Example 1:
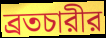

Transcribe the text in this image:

ব্রতচারীর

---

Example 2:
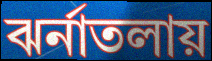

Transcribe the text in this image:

ঝর্নাতলায়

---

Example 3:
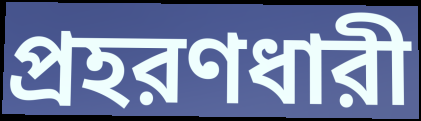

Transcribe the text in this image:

প্রহরণধারী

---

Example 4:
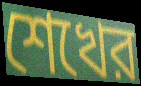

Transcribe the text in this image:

শেখের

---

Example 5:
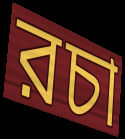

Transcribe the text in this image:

রচা